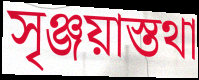
সৃঞ্জয়াস্তথা